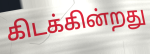
கிடக்கின்றது